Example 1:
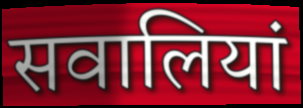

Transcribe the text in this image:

सवालियां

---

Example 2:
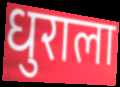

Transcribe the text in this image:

धुराला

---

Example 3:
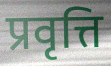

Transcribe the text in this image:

प्रवृत्ति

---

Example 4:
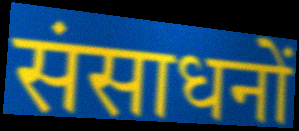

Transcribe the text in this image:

संसाधनों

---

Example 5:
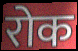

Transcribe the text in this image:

रोक